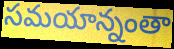
సమయాన్నంతా